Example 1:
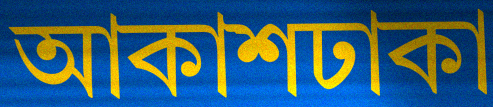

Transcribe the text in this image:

আকাশঢাকা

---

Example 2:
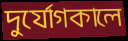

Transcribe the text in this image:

দুর্যোগকালে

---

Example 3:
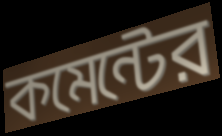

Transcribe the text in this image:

কমেন্টের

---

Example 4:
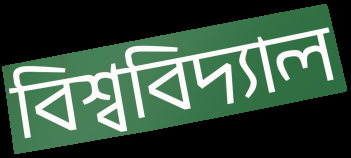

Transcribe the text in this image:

বিশ্ববিদ্যাল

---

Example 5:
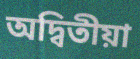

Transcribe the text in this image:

অদ্বিতীয়া